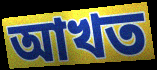
আখত